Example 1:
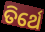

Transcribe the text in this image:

ତିର୍ଥେ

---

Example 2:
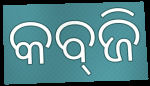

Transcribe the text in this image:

କବ୍‍ଜି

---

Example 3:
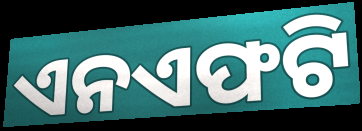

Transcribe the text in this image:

ଏନଏଫଟି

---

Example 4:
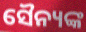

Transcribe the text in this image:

ସୈନ୍ୟଙ୍କ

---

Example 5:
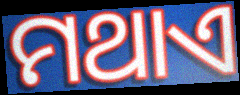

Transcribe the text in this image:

ମଥାଏ